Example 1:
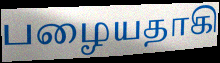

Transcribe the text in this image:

பழையதாகி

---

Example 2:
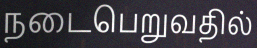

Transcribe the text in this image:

நடைபெறுவதில்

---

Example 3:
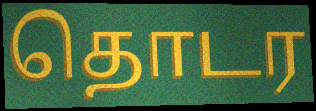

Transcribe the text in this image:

தொடர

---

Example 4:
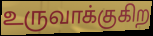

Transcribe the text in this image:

உருவாக்குகிற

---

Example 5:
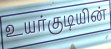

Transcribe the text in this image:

உயர்குடியின்